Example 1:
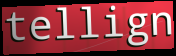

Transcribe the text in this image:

tellign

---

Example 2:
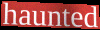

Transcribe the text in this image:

haunted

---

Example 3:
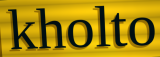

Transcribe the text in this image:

kholto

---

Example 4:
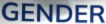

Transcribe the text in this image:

GENDER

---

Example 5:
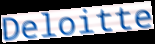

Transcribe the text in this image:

Deloitte